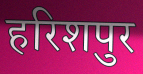
हरिशपुर